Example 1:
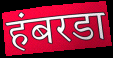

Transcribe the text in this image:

हंबरडा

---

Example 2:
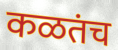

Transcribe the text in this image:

कळतंच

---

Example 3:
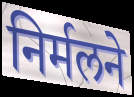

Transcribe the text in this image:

निर्मलने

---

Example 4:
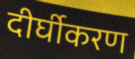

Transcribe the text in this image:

दीर्घीकरण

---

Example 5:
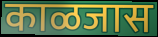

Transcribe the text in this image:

काळजास